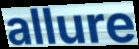
allure